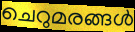
ചെറുമരങ്ങൾ